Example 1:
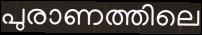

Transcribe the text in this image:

പുരാണത്തിലെ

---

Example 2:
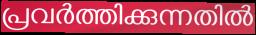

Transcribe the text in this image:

പ്രവർത്തിക്കുന്നതിൽ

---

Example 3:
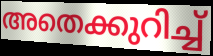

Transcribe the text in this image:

അതെക്കുറിച്ച്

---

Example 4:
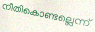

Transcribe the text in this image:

നീതികൊണ്ടല്ലെന്ന്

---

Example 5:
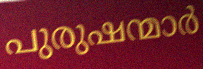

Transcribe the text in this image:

പുരുഷന്മാർ